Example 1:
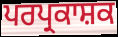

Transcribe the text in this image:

ਪਰਪ੍ਰਕਾਸ਼ਕ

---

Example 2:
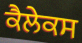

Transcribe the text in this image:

ਕੈਲੇਕਸ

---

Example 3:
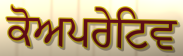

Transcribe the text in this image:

ਕੋਅਪਰੇਟਿਵ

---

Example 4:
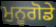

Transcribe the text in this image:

ਮੁਨੂਗੋਡੇ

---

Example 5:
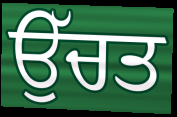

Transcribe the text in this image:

ਉੱਚਤ